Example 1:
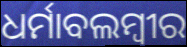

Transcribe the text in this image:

ଧର୍ମାବଲମ୍ବୀର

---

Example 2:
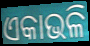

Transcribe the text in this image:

ଏକାଭଳି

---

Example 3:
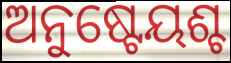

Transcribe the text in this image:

ଅନୁଷ୍ଟେୟଶ୍ଚ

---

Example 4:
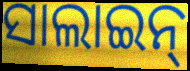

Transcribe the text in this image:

ସାଲାଇନ୍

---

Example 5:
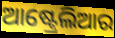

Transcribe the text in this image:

ଆଷ୍ଟ୍ରେଲିଆର